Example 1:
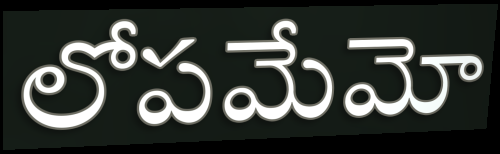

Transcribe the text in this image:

లోపమేమో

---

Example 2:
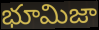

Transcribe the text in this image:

భూమిజా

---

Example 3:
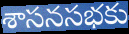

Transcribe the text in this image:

శాసనసభకు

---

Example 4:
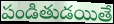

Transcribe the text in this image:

పండితుడయితే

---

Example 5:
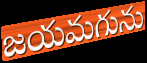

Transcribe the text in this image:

జయమగును